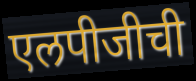
एलपीजीची